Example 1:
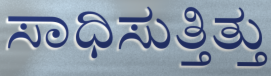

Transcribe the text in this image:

ಸಾಧಿಸುತ್ತಿತ್ತು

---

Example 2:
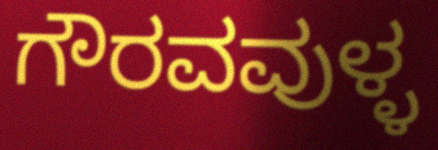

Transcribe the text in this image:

ಗೌರವವುಳ್ಳ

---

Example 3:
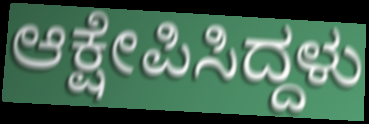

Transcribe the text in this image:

ಆಕ್ಷೇಪಿಸಿದ್ದಳು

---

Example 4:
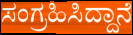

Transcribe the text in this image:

ಸಂಗ್ರಹಿಸಿದ್ದಾನೆ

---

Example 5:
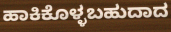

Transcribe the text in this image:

ಹಾಕಿಕೊಳ್ಳಬಹುದಾದ